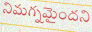
నిమగ్నమైందని